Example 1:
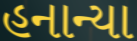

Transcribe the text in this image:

હનાન્યા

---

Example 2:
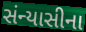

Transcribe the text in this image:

સંન્યાસીના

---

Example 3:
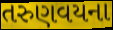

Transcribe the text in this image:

તરુણવયના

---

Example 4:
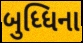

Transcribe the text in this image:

બુધ્ધિના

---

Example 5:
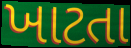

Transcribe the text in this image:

ખાટતા